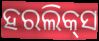
ହରଲିକ୍‌ସ